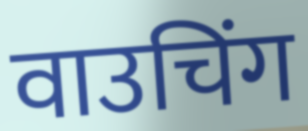
वाउचिंग